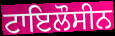
ਟਾਇਲੌਸੀਨ